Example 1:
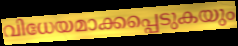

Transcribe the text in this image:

വിധേയമാക്കപ്പെടുകയും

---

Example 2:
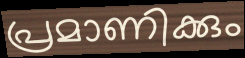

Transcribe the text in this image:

പ്രമാണിക്കും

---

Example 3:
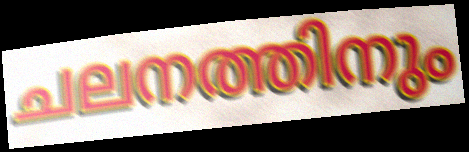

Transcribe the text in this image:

ചലനത്തിനും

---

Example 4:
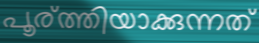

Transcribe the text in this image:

പൂര്ത്തിയാക്കുന്നത്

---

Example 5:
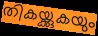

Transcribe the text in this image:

തികയ്ക്കുകയും